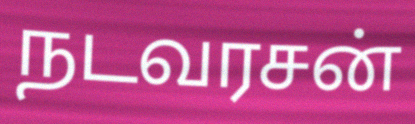
நடவரசன்